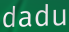
dadu